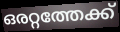
ഒരറ്റത്തേക്ക്